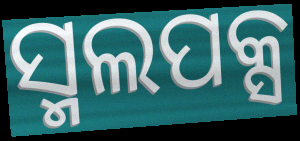
ସ୍ମଲପକ୍ସ